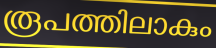
രൂപത്തിലാകും